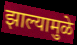
झाल्यामुळे